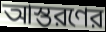
আস্তরণের